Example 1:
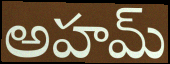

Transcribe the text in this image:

అహమ్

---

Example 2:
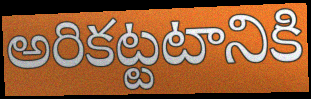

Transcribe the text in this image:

అరికట్టటానికి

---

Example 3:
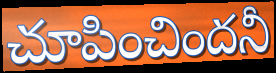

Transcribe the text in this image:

చూపించిందనీ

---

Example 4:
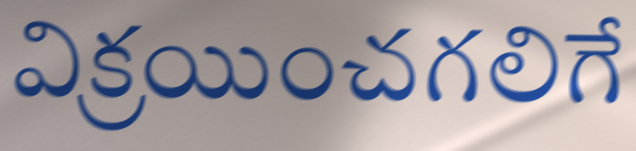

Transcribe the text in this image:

విక్రయించగలిగే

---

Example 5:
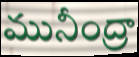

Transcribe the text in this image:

మునీంద్రా